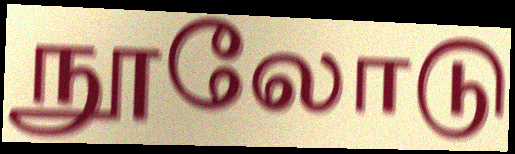
நூலோடு